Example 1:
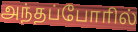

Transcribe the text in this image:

அந்தப்போரில்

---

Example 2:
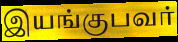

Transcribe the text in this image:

இயங்குபவர்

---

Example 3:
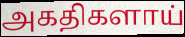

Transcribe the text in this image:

அகதிகளாய்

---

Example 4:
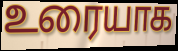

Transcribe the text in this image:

உரையாக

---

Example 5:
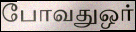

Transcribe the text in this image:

போவதுஒர்